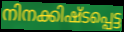
നിനക്കിഷ്ടപ്പെട്ട